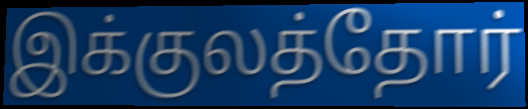
இக்குலத்தோர்